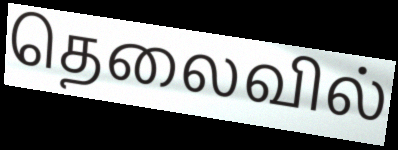
தெலைவில்